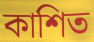
কাশিত